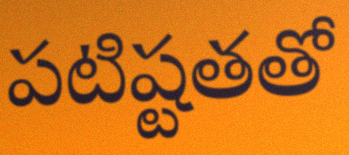
పటిష్టతతో